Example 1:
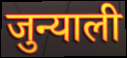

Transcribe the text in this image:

जुन्याली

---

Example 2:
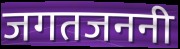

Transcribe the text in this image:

जगतजननी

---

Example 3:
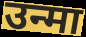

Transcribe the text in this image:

उन्मा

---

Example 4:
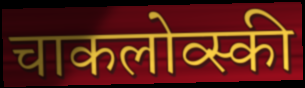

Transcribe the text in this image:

चाकलोव्स्की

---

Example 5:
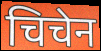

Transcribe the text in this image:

चिचेन